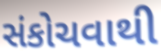
સંકોચવાથી